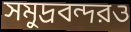
সমুদ্রবন্দরও